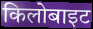
किलोबाइट